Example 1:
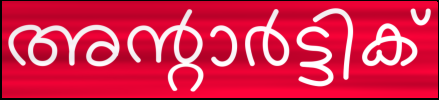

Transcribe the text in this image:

അന്റാർട്ടിക്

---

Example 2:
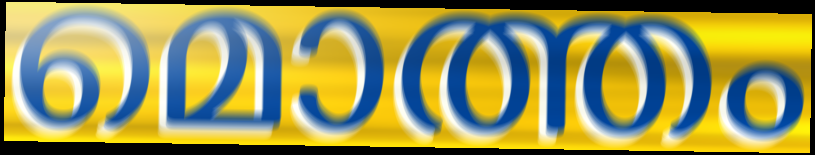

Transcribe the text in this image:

മൊത്തം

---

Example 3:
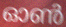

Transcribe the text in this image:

ഓൺ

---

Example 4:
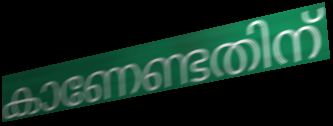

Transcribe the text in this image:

കാണേണ്ടതിന്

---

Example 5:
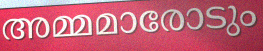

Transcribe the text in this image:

അമ്മമാരോടും